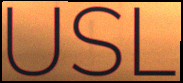
USL